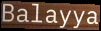
Balayya